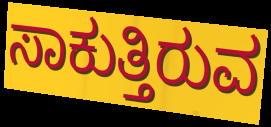
ಸಾಕುತ್ತಿರುವ